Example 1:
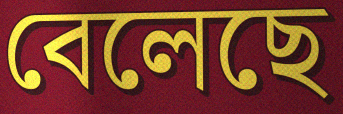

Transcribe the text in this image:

বেলেছে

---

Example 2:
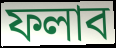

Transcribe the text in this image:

ফলাব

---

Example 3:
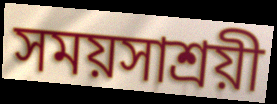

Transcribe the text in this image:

সময়সাশ্রয়ী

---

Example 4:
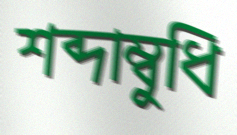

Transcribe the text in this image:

শব্দাম্বুধি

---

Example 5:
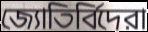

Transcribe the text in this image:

জ্যোতির্বিদেরা